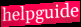
helpguide